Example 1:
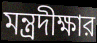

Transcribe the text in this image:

মন্ত্রদীক্ষার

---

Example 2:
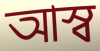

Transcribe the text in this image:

আস্ব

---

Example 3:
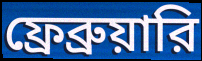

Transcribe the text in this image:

ফ্রেব্রুয়ারি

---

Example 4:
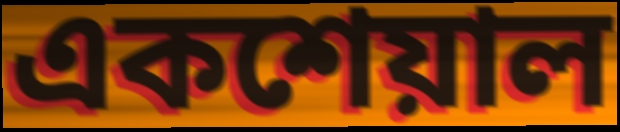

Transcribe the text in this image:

একশেয়াল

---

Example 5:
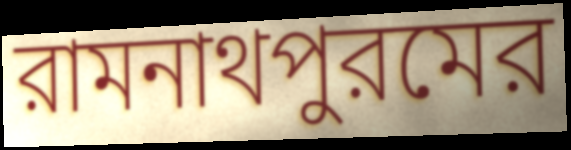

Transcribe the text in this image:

রামনাথপুরমের